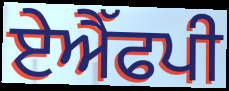
ਏਐੱਫਪੀ